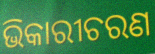
ଭିକାରୀଚରଣ